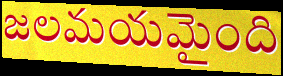
జలమయమైంది